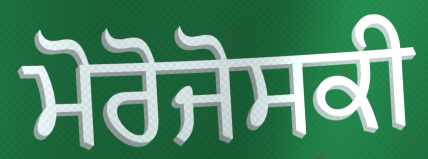
ਮੋਰੋਜੋਸਕੀ